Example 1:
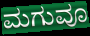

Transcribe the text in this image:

ಮಗುವೂ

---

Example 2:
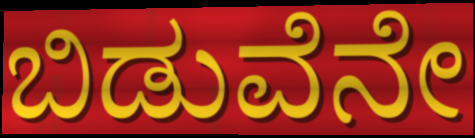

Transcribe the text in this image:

ಬಿಡುವೆನೇ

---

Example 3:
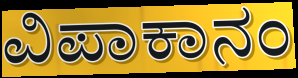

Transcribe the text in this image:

ವಿಪಾಕಾನಂ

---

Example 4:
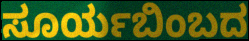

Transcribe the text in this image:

ಸೂರ್ಯಬಿಂಬದ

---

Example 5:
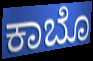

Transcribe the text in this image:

ಕಾಬೊ